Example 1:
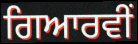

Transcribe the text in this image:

ਗਿਆਰਵੀਂ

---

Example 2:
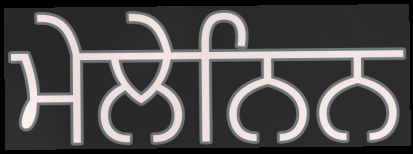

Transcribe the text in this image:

ਮੇਲੇਨਿਨ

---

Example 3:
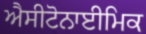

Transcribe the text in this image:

ਐਸੀਟੋਨਾਈਮਿਕ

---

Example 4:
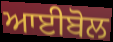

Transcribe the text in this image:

ਆਈਬੋਲ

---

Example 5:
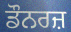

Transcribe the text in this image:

ਡੌਨਰਜ਼